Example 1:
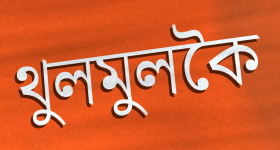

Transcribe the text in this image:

থুলমুলকৈ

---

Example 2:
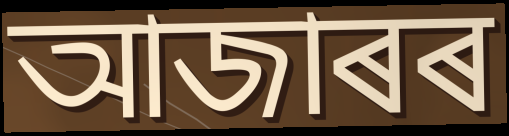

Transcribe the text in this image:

আজাৰৰ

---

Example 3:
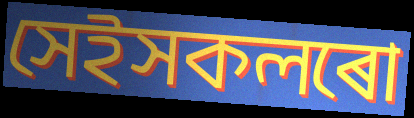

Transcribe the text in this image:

সেইসকলৰো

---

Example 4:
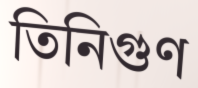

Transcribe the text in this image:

তিনিগুণ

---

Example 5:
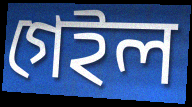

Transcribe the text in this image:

গেইল